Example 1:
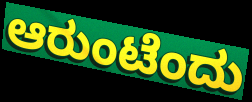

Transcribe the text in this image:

ಆರುಂಟೆಂದು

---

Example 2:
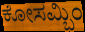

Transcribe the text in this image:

ಕೋಸಮ್ಬಿಂ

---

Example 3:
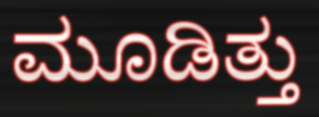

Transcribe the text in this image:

ಮೂಡಿತ್ತು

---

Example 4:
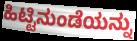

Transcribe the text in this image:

ಹಿಟ್ಟಿನುಂಡೆಯನ್ನು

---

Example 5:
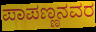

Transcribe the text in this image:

ಪಾಪಣ್ಣನವರ